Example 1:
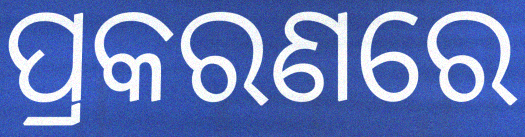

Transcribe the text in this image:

ପ୍ରକରଣରେ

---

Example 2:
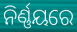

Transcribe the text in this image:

ନିର୍ଣ୍ଣୟରେ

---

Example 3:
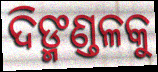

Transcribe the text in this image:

ଦିଙ୍ମଣ୍ଡଳକୁ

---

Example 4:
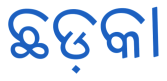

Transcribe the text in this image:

ଛଡ଼କା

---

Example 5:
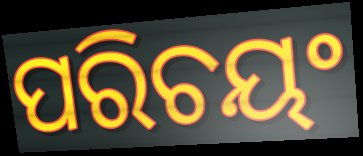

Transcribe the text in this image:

ପରିଚୟଂ